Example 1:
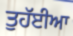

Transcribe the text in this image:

ਤੁਹੱਈਆ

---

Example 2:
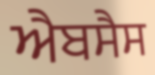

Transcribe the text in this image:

ਐਬਸੈਸ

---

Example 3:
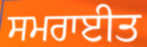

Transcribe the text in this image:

ਸਮਰਾਈਤ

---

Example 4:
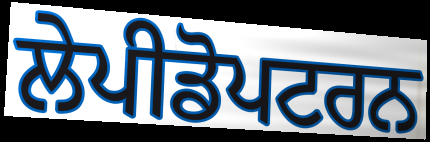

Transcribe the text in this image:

ਲੇਪੀਡੋਪਟਰਨ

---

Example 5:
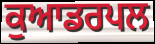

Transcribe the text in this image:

ਕੁਆਡਰਪਲ